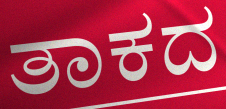
ತಾಕದ